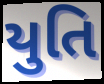
યુતિ